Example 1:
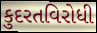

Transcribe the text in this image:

કુદરતવિરોધી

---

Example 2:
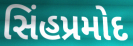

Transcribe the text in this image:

સિંહપ્રમોદ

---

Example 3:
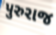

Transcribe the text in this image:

પુરુરાજ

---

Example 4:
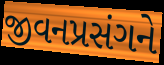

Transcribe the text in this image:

જીવનપ્રસંગને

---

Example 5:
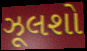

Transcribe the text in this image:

ઝૂલશો